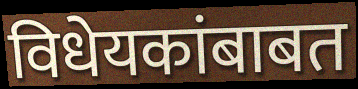
विधेयकांबाबत